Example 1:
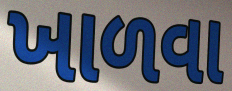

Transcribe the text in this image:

ખાળવા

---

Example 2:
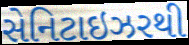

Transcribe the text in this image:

સેનિટાઇઝરથી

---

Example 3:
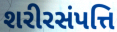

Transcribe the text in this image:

શરીરસંપત્તિ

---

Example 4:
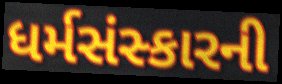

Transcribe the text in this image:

ધર્મસંસ્કારની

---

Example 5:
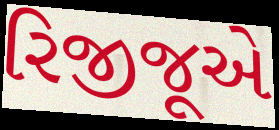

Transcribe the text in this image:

રિજીજૂએ